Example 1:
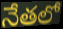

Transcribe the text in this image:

నేతలో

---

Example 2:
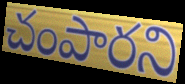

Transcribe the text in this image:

చంపారని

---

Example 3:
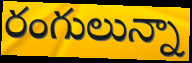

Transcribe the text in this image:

రంగులున్నా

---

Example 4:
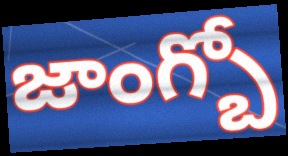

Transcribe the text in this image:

జాంగ్బో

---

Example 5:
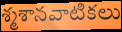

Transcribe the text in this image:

శ్మశానవాటికలు